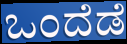
ಒಂದೆಡೆ